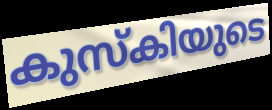
കുസ്കിയുടെ